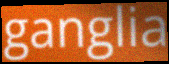
ganglia